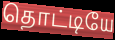
தொட்டியே